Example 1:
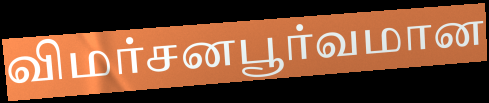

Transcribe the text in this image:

விமர்சனபூர்வமான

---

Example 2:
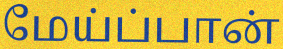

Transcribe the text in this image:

மேய்ப்பான்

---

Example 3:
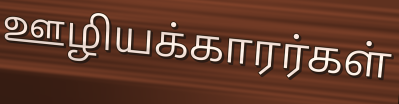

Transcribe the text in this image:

ஊழியக்காரர்கள்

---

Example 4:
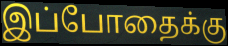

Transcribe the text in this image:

இப்போதைக்கு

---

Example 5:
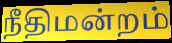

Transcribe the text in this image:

நீதிமன்றம்